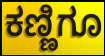
ಕಣ್ಣಿಗೂ